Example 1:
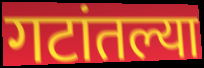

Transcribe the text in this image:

गटांतल्या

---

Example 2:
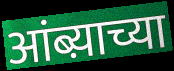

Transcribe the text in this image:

आंब्य़ाच्या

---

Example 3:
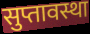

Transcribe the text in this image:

सुप्तावस्था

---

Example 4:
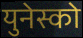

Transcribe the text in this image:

युनेस्को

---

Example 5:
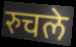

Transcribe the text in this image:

रुचले